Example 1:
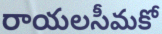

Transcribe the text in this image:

రాయలసీమకో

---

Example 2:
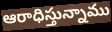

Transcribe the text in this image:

ఆరాధిస్తున్నాము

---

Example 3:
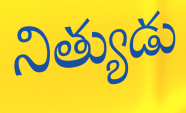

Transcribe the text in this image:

నిత్యుడు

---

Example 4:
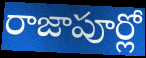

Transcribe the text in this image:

రాజాపూర్లో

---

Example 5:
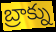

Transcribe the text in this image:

బ్రాక్ను